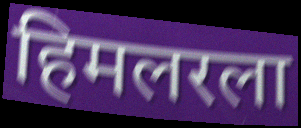
हिमलरला